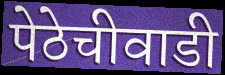
पेठेचीवाडी